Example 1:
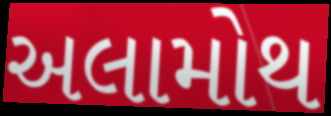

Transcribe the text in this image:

અલામોથ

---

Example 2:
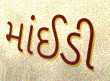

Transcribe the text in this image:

માંઈડી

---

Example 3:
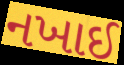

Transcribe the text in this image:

નખાઈ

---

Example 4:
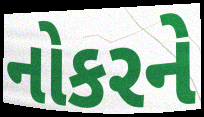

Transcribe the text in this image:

નોકરને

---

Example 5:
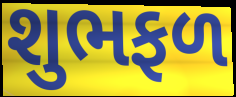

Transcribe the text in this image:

શુભફળ